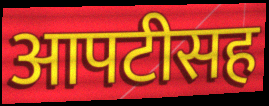
आपटीसह